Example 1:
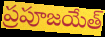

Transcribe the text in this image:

ప్రపూజయేత్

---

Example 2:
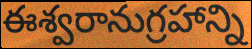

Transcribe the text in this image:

ఈశ్వరానుగ్రహాన్ని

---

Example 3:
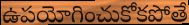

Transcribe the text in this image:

ఉపయోగించుకోకపోతే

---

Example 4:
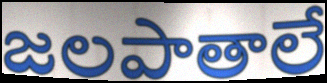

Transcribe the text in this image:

జలపాతాలే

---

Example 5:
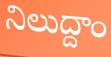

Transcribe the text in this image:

నిలుద్దాం